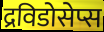
द्रविडोसेप्स